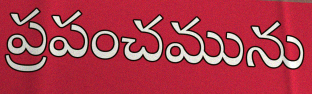
ప్రపంచమును